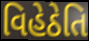
વિહેઠેતિ